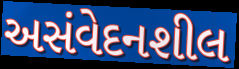
અસંવેદનશીલ